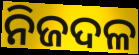
ନିଜଦଳ